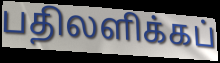
பதிலளிக்கப்